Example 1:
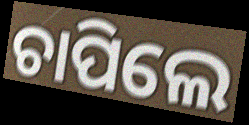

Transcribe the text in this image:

ଚାପିଲେ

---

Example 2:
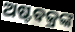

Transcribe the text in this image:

ଅଷ୍ଟବକ୍ରଙ୍କ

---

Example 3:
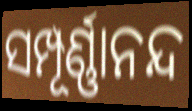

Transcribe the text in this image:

ସମ୍ପୂର୍ଣ୍ଣାନନ୍ଦ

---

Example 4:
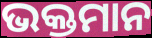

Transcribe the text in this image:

ଭକ୍ତମାନ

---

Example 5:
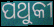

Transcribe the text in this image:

ପଥୁକୀ